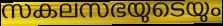
സകലസഭയുടെയും